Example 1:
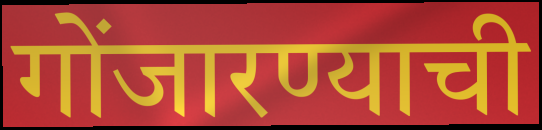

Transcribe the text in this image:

गोंजारण्याची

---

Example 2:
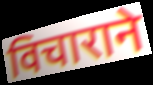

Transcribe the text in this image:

विचाराने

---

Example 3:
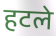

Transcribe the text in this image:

हटले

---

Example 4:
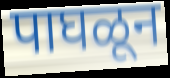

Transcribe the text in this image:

पाघळून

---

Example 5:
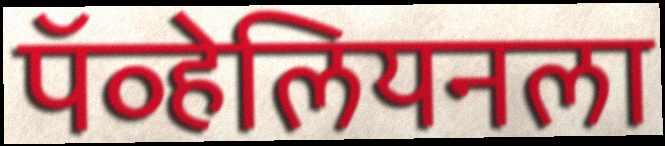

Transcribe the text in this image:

पॅव्हेलियनला